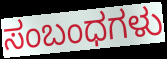
ಸಂಬಂಧಗಳು